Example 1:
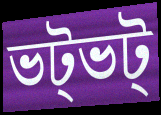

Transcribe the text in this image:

ভট্ভট্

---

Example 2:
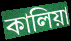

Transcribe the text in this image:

কালিয়া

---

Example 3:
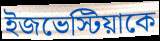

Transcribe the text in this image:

ইজভেস্টিয়াকে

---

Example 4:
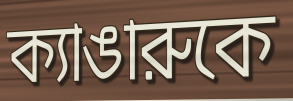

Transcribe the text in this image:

ক্যাঙারুকে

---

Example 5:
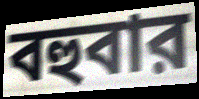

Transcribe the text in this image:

বহুবার